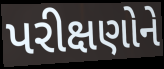
પરીક્ષણોને